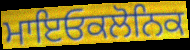
ਮਾਇਓਕਲੋਨਿਕ